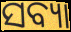
ସବ୍ୟା